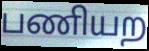
பணியற